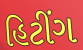
હિટીંગ